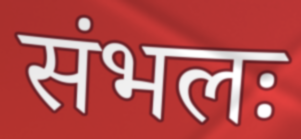
संभलः